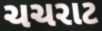
ચચરાટ